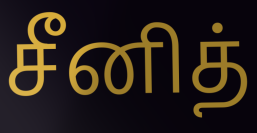
சீனித்